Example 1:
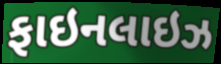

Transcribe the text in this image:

ફાઇનલાઇઝ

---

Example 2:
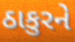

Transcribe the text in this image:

ઠાકુરને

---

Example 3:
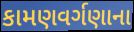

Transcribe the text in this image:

કામણવર્ગણાના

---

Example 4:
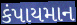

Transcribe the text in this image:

કંપાયમાન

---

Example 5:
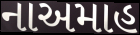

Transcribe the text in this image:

નાઅમાહ